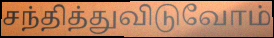
சந்தித்துவிடுவோம்